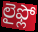
లైఫ్లో